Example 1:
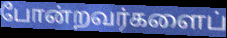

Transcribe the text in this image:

போன்றவர்களைப்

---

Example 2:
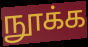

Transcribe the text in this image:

நூக்க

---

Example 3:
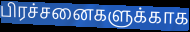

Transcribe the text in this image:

பிரச்சனைகளுக்காக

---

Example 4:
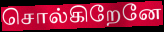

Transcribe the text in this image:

சொல்கிறேனே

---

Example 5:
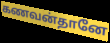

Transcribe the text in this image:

கணவன்தானே